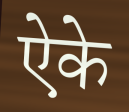
ऐके